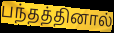
பந்தத்தினால்